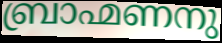
ബ്രാഹ്മണനു